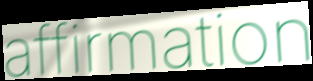
affirmation